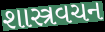
શાસ્ત્રવચન